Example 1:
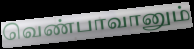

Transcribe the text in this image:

வெண்பாவானும்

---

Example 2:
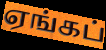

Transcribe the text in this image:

ஏங்கப்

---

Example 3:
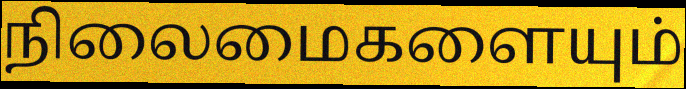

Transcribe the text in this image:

நிலைமைகளையும்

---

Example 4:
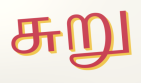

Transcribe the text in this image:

சுறு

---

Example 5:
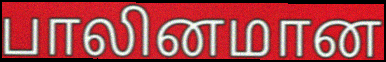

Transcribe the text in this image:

பாலினமான